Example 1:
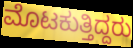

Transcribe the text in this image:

ಮೊಟಕುತ್ತಿದ್ದರು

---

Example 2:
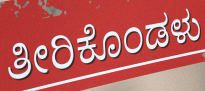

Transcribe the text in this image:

ತೀರಿಕೊಂಡಳು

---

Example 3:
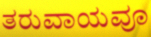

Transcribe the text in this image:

ತರುವಾಯವೂ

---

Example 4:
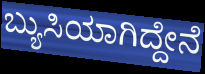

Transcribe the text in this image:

ಬ್ಯುಸಿಯಾಗಿದ್ದೇನೆ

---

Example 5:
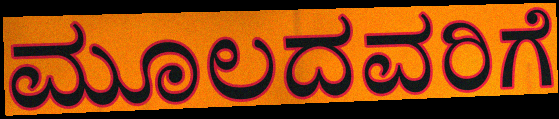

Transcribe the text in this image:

ಮೂಲದವರಿಗೆ